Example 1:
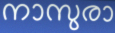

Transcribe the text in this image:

നാസുരാ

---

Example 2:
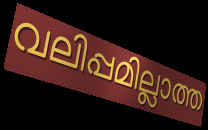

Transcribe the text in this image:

വലിപ്പമില്ലാത്ത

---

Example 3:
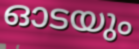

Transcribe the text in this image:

ഓടയും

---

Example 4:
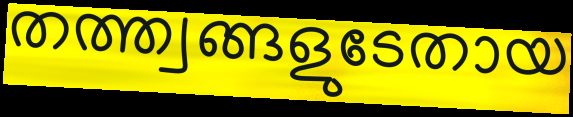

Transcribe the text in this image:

തത്ത്വങ്ങളുടേതായ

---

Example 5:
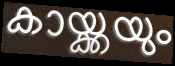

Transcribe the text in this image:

കായ്ക്കയും